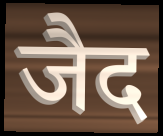
जैद